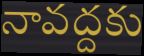
నావద్దకు